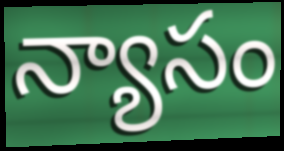
న్యాసం